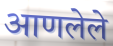
आणलेले